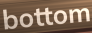
bottom